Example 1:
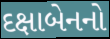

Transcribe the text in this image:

દક્ષાબેનનો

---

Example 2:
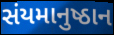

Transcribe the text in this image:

સંયમાનુષ્ઠાન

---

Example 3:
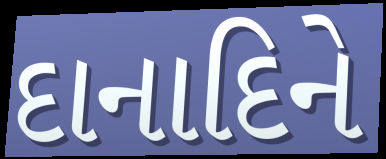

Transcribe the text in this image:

દાનાદિને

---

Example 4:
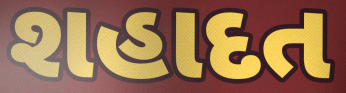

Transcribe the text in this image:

શહાદત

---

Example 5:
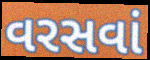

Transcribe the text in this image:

વરસવાં